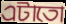
এটাতো